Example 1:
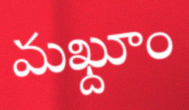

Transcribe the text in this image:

మఖ్దూం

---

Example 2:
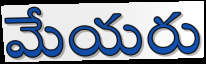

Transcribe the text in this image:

మేయరు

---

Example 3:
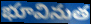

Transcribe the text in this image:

భూవినుత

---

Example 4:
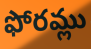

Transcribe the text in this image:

ఫోరమ్లు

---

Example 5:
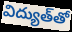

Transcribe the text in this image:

విద్యుత్‌తో